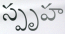
స్పృహ